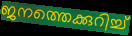
ജനത്തെക്കുറിച്ച്